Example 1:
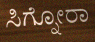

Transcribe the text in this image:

ಸಿಗ್ನೋರಾ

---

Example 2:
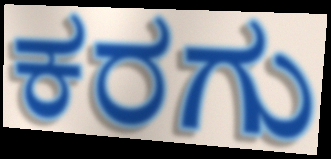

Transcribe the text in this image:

ಕರಗು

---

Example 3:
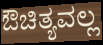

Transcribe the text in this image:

ಔಚಿತ್ಯವಲ್ಲ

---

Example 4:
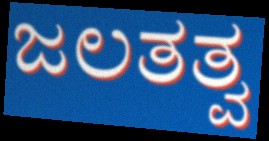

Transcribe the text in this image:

ಜಲತತ್ವ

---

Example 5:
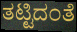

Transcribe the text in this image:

ತಟ್ಟಿದಂತೆ